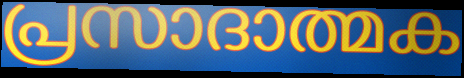
പ്രസാദാത്മക